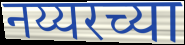
नय्यरच्या